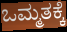
ಒಮ್ಮತಕ್ಕೆ